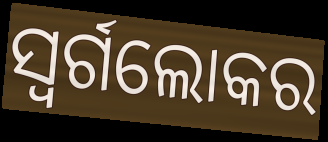
ସ୍ୱର୍ଗଲୋକର